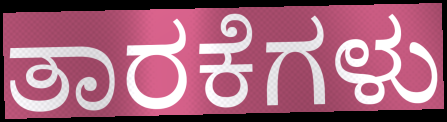
ತಾರಕೆಗಳು